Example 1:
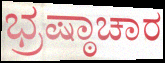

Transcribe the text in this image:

ಭ್ರಷ್ಠಾಚಾರ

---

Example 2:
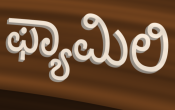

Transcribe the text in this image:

ಫ್ಯಾಮಿಲಿ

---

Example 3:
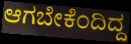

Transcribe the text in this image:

ಆಗಬೇಕೆಂದಿದ್ದ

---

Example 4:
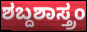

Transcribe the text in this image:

ಶಬ್ದಶಾಸ್ತ್ರಂ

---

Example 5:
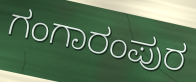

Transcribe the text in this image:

ಗಂಗಾರಂಪುರ